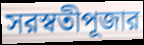
সরস্বতীপূজার